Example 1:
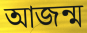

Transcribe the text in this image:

আজন্ম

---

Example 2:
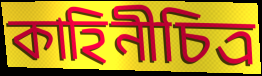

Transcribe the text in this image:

কাহিনীচিত্র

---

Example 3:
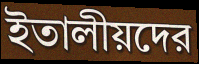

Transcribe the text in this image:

ইতালীয়দের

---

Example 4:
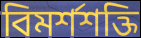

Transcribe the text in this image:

বিমর্শশক্তি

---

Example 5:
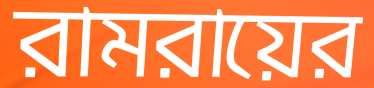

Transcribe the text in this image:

রামরায়ের